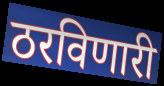
ठरविणारी